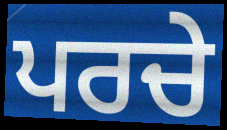
ਪਰਚੇ